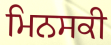
ਮਿਨਸਕੀ